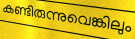
കണ്ടിരുന്നുവെങ്കിലും